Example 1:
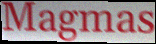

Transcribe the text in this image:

Magmas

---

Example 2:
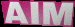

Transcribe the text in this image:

AIM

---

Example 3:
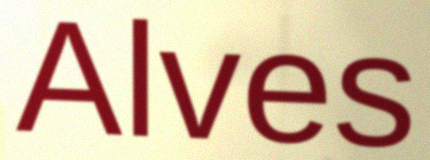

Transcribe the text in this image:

Alves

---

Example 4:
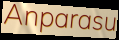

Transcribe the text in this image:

Anparasu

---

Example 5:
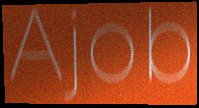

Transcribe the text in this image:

Ajob